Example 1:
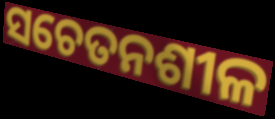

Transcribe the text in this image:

ସଚେତନଶୀଳ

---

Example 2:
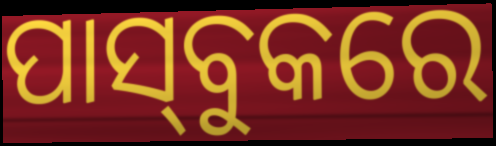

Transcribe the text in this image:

ପାସ୍‌ବୁକରେ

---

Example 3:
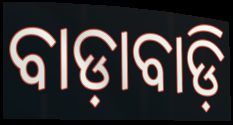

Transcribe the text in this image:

ବାଡ଼ାବାଡ଼ି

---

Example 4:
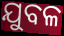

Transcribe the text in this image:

ଯୁବଳ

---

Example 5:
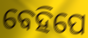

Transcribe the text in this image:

ବେହିପେ